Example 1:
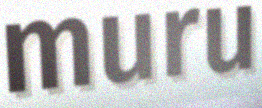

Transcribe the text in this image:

muru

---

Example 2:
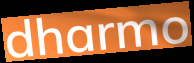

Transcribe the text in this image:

dharmo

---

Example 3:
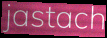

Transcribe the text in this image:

jastach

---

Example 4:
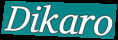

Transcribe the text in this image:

Dikaro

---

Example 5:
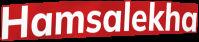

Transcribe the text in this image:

Hamsalekha